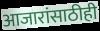
आजारांसाठीही